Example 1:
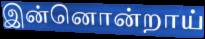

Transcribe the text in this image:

இன்னொன்றாய்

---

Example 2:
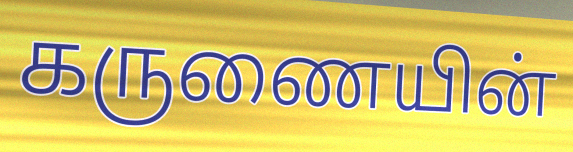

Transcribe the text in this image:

கருணையின்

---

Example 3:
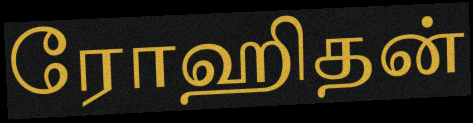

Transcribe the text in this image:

ரோஹிதன்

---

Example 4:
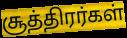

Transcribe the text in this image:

சூத்திரர்கள்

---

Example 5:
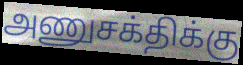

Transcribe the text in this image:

அணுசக்திக்கு